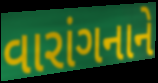
વારાંગનાને